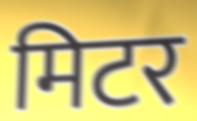
मिटर